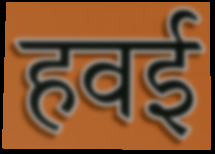
हवई